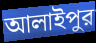
আলাইপুর